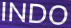
INDO